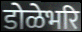
डोळेभरि